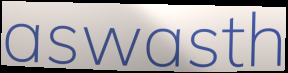
aswasth